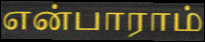
என்பாராம்